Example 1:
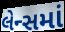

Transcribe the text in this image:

લેન્સમાં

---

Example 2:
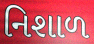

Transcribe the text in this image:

નિશાળ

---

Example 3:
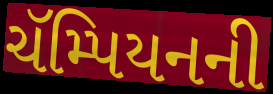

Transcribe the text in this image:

ચૅમ્પિયનની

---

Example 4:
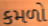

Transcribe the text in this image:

કમળો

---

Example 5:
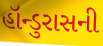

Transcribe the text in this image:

હૉન્ડુરાસની